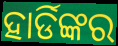
ହାର୍ଡିଙ୍କର